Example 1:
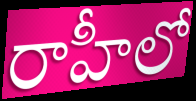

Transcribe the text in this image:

రాహీలో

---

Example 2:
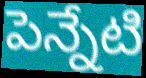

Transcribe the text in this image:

పెన్నేటి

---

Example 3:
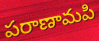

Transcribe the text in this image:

పరాణామపి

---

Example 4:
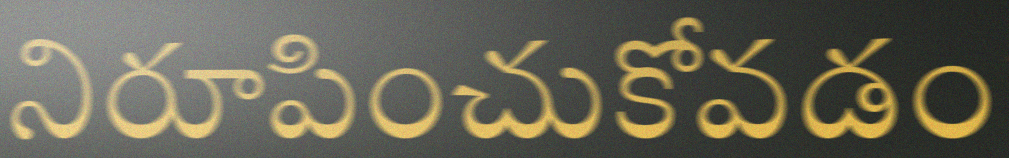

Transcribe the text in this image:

నిరూపించుకోవడం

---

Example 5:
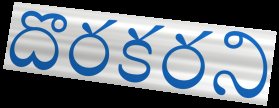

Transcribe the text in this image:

దొరకరని